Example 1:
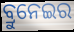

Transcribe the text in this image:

ବ୍ରୁନେଇର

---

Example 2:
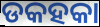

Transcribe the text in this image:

ଡକହକା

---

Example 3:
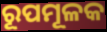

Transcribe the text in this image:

ରୂପମୂଳକ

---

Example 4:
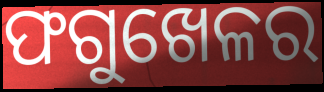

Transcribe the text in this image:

ଫଗୁଖେଳର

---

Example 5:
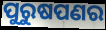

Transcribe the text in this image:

ପୁରୁଷପଣର